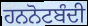
ਹਨਨੋਟਬੰਦੀ